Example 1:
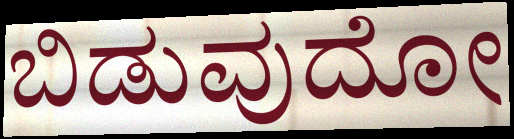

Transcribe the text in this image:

ಬಿಡುವುದೋ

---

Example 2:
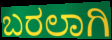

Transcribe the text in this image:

ಬರಲಾಗಿ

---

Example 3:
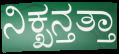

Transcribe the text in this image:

ನಿಕ್ಖನ್ತತ್ತಾ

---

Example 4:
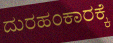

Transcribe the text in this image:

ದುರಹಂಕಾರಕ್ಕೆ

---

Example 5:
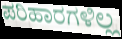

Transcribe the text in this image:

ಪರಿಹಾರಗಳಿಲ್ಲ